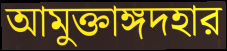
আমুক্তাঙ্গদহার